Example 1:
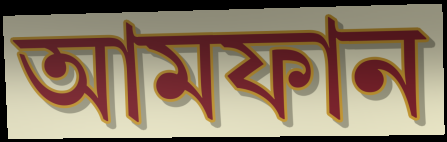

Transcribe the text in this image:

আমফান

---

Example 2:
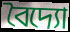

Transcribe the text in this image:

বৈদ্যো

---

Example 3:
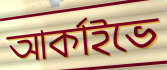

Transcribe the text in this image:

আর্কাইভে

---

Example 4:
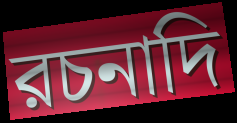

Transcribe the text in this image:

রচনাদি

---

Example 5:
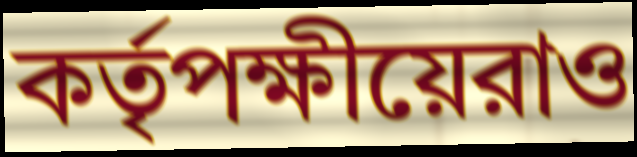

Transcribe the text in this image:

কর্তৃপক্ষীয়েরাও